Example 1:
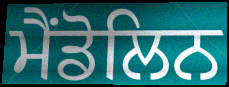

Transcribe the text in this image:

ਮੈਂਡੋਲਿਨ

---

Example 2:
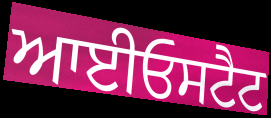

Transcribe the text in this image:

ਆਈਓਸਟੈਟ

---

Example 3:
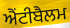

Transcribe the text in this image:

ਐਂਟੀਬੈਲਮ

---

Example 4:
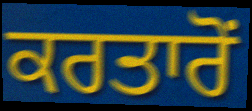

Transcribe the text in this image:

ਕਰਤਾਰੋਂ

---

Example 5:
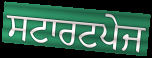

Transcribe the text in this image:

ਸਟਾਰਟਪੇਜ